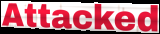
Attacked